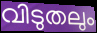
വിടുതലും